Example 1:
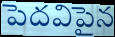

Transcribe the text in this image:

పెదవిపైన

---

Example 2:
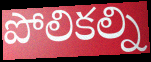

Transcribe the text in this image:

పోలికల్ని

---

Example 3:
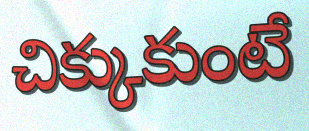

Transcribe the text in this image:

చిక్కుకుంటే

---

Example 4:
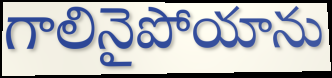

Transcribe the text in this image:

గాలినైపోయాను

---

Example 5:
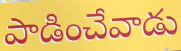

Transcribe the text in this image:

పాడించేవాడు